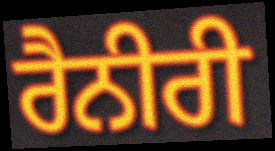
ਰੈਨੀਰੀ